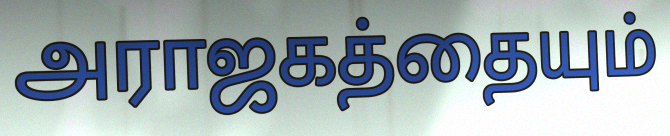
அராஜகத்தையும்